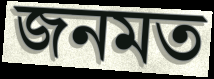
জনমত